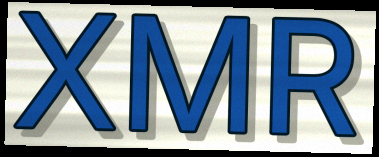
XMR